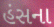
હંસના